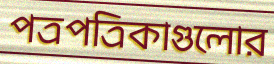
পত্রপত্রিকাগুলোর